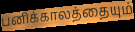
பனிக்காலத்தையும்